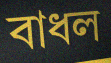
বাধল